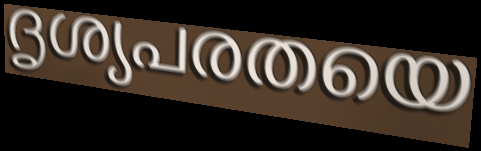
ദൃശ്യപരതയെ